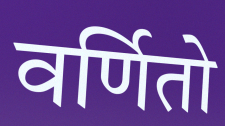
वर्णितो